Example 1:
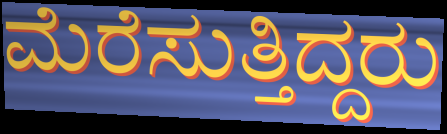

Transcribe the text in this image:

ಮೆರೆಸುತ್ತಿದ್ದರು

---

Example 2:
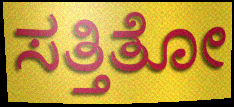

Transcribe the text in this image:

ಸತ್ತಿತೋ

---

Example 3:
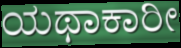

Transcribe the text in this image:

ಯಥಾಕಾರೀ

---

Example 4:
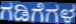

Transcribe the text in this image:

ಗಡಿಗೆಗಳ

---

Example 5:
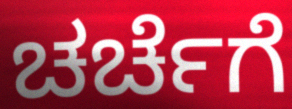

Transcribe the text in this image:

ಚರ್ಚೆಗೆ